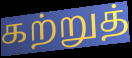
கற்றுத்